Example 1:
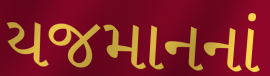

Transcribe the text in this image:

યજમાનનાં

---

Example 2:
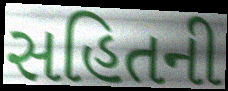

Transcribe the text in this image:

સહિતની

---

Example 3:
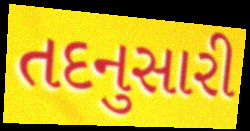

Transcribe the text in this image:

તદનુસારી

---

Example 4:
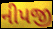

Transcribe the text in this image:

નીપજી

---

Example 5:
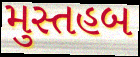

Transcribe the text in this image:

મુસ્તહબ